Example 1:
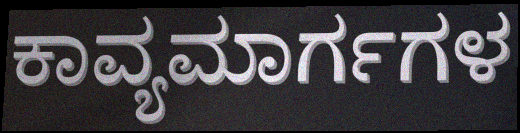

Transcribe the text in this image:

ಕಾವ್ಯಮಾರ್ಗಗಳ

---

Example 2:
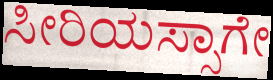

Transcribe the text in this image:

ಸೀರಿಯಸ್ಸಾಗೇ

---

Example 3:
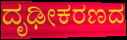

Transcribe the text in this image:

ದೃಢೀಕರಣದ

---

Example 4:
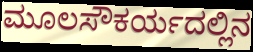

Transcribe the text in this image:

ಮೂಲಸೌಕರ್ಯದಲ್ಲಿನ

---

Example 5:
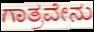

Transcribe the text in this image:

ಗಾತ್ರವೇನು